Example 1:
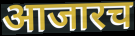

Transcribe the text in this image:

आजारच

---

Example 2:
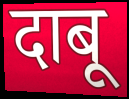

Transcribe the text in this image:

दाबू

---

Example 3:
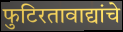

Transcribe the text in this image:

फुटिरतावाद्यांचे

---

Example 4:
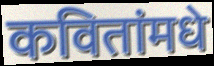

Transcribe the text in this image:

कवितांमधे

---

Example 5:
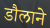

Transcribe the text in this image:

डौलाने